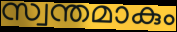
സ്വന്തമാകും